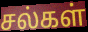
சல்கள்